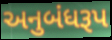
અનુબંધરૂપ